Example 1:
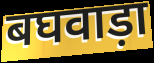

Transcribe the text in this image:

बघवाड़ा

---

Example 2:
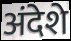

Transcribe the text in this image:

अंदेशे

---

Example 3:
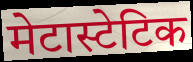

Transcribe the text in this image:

मेटास्टेटिक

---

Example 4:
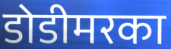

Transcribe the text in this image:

डोडीमरका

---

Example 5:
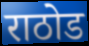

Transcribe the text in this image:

राठोड